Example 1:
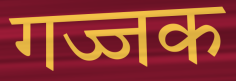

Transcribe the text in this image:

गज्जक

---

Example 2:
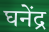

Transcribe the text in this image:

घनेंद्र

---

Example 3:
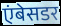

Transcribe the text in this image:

एंबेसडर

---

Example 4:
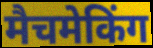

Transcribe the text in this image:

मैचमेकिंग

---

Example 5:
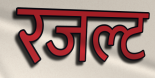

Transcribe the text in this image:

रजल्ट